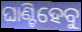
ଘାଣ୍ଟିହେବୁ